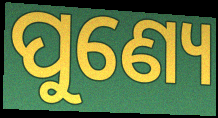
ପୁଣ୍ୟେ